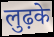
लुढ़के